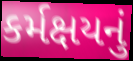
કર્મક્ષયનું